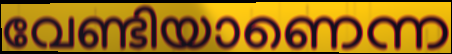
വേണ്ടിയാണെന്ന